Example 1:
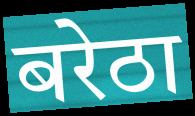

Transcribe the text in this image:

बरेठा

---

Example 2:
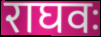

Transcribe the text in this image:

राघवः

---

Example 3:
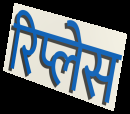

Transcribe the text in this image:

रिप्लेस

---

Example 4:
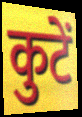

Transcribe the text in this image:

कुटें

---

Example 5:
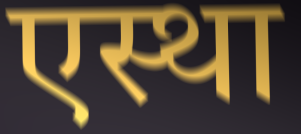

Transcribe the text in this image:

एस्था